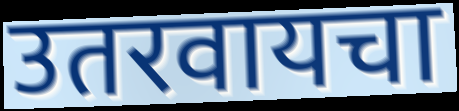
उतरवायचा